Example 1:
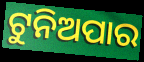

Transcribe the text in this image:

ଟୁନିଅପାର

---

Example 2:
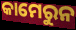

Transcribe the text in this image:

କାମେରୁନ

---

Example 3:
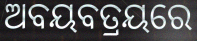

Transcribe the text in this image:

ଅବୟବତ୍ରୟରେ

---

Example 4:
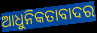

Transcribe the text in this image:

ଆଧୁନିକତାବାଦର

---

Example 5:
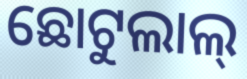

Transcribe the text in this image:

ଛୋଟୁଲାଲ୍